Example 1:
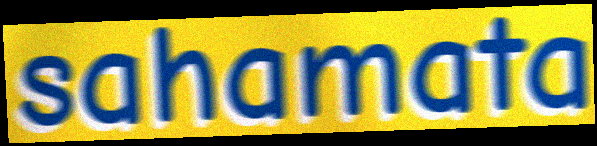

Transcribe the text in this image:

sahamata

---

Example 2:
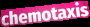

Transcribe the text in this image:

chemotaxis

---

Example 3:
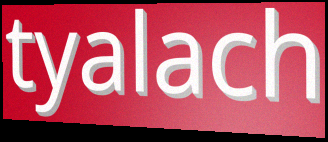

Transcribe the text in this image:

tyalach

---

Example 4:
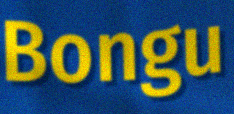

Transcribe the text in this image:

Bongu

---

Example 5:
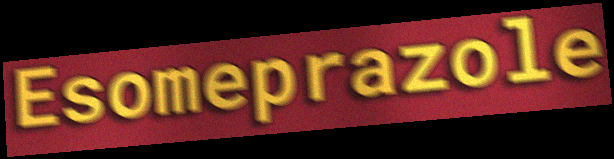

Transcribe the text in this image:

Esomeprazole